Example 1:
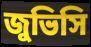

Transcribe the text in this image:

জুভিসি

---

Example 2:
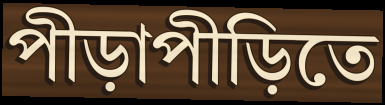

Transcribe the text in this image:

পীড়াপীড়িতে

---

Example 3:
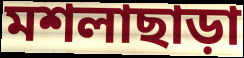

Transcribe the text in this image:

মশলাছাড়া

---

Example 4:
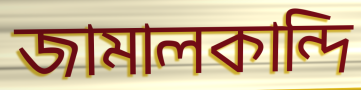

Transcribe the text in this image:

জামালকান্দি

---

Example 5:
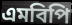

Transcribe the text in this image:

এমবিপি